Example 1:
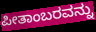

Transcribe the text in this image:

ಪೀತಾಂಬರವನ್ನು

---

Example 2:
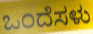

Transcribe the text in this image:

ಒಂದೆಸಳು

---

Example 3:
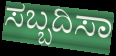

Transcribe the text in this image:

ಸಬ್ಬದಿಸಾ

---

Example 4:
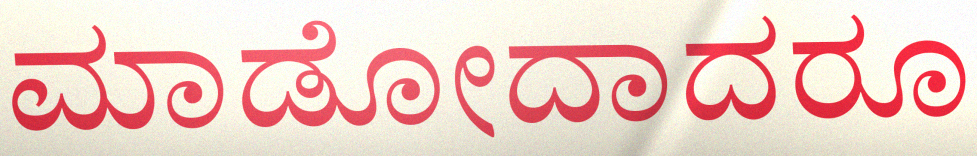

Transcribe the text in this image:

ಮಾಡೋದಾದರೂ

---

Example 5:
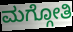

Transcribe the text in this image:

ಮಗ್ಗೋತಿ